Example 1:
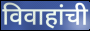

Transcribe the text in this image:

विवाहांची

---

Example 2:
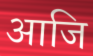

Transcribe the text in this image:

आजि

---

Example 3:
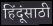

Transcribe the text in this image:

हिंदूंसाठी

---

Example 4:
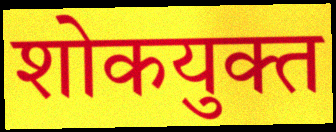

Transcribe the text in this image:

शोकयुक्त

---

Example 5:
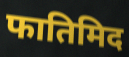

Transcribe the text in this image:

फातिमिद